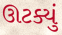
ઊટક્યું